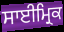
ਸਾਈਮ੍ਰਿਕ